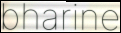
bharine